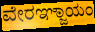
ವೇರಞ್ಜಾಯಂ